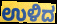
ಉಳಿದ